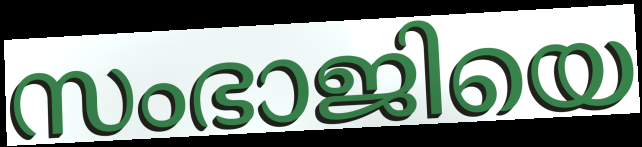
സംഭാജിയെ